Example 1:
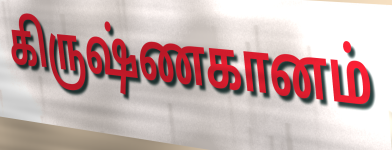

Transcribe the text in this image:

கிருஷ்ணகானம்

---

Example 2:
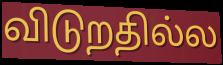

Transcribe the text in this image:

விடுறதில்ல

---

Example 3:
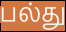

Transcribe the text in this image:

பல்து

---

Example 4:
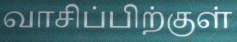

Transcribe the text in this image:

வாசிப்பிற்குள்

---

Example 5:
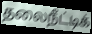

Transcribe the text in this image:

தலைநீட்டிக்